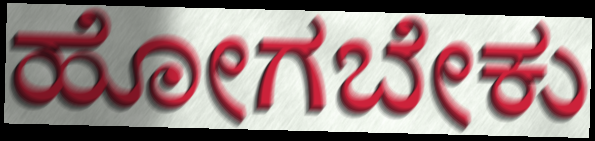
ಹೋಗಬೇಕು